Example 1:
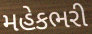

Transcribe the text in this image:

મહેકભરી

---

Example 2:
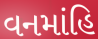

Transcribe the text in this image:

વનમાંહિ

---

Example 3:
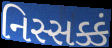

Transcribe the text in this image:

નિસ્સક્કં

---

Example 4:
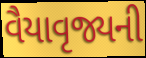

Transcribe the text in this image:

વૈયાવૃજ્યની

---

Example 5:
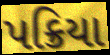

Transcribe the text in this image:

પક્રિયા